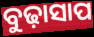
ବୁଢ଼ାସାପ